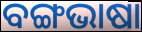
ବଙ୍ଗଭାଷା